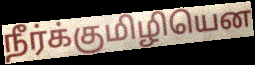
நீர்க்குமிழியென